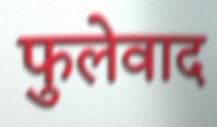
फुलेवाद